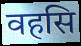
वहसि